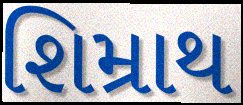
શિમ્રાથ